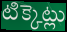
టిక్కెట్లు